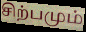
சிற்பமும்